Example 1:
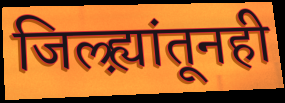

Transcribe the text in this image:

जिल्ह्य़ांतूनही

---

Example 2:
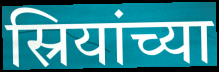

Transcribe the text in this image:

स्रियांच्या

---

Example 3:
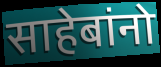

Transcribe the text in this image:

साहेबांनो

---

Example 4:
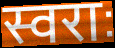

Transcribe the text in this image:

स्वराः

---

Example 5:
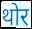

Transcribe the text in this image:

थोर